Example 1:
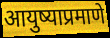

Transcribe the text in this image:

आयुष्याप्रमाणे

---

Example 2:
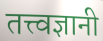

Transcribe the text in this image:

तत्त्वज्ञानी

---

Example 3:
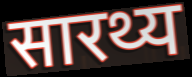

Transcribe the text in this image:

सारथ्य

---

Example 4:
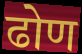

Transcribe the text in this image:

ढोण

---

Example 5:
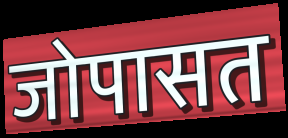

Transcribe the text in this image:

जोपासत